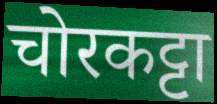
चोरकट्टा